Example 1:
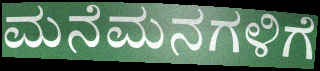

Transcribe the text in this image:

ಮನೆಮನಗಳಿಗೆ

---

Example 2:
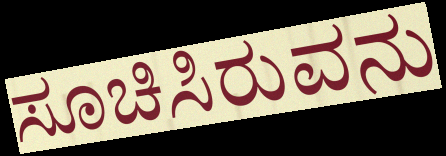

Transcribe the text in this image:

ಸೂಚಿಸಿರುವನು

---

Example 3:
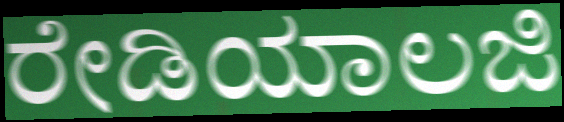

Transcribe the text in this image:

ರೇಡಿಯಾಲಜಿ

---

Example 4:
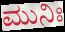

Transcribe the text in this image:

ಮುನಿಃ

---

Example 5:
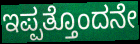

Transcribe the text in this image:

ಇಪ್ಪತ್ತೊಂದನೇ